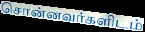
சொன்னவர்களிடம்